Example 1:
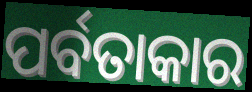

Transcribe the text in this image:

ପର୍ବତାକାର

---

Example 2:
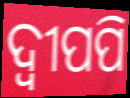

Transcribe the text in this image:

ଦ୍ବୀପପି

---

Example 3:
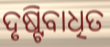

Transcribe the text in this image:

ଦୃଷ୍ଟିବାଧିତ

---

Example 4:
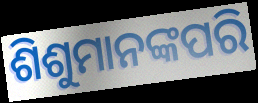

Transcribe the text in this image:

ଶିଶୁମାନଙ୍କପରି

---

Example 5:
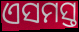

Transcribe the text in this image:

ଏସମସ୍ତ